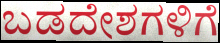
ಬಡದೇಶಗಳಿಗೆ